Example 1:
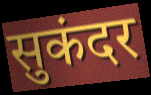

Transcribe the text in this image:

सुकंदर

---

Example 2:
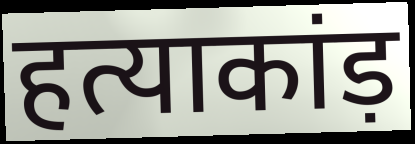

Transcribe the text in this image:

हत्याकांड़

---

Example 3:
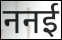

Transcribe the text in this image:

ननई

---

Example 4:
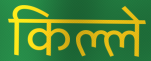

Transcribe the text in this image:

किल्ले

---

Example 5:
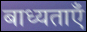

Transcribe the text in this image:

बाध्यताएँ